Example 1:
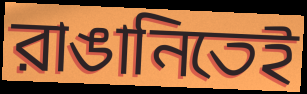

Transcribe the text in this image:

রাঙানিতেই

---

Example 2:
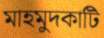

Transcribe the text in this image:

মাহমুদকাটি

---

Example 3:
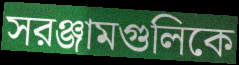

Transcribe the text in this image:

সরঞ্জামগুলিকে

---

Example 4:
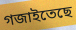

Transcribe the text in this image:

গজাইতেছে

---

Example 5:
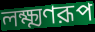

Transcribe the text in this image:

লক্ষ্মণরূপ